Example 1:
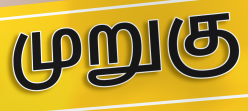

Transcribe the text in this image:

முறுகு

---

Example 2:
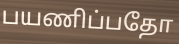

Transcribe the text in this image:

பயணிப்பதோ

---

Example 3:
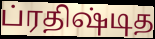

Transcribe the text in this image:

ப்ரதிஷ்டித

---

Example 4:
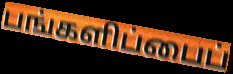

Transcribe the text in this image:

பங்களிப்பைப்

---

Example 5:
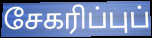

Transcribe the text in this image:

சேகரிப்புப்